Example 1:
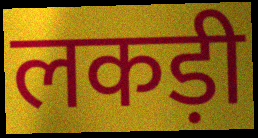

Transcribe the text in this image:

लकड़ी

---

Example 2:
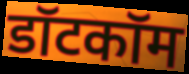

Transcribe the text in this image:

डॉटकॉम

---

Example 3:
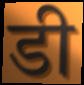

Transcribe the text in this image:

डी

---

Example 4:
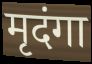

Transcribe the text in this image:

मृदंगा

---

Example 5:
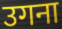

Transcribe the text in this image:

उगना